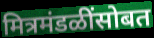
मित्रमंडळींसोबत